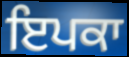
ਇਪਕਾ